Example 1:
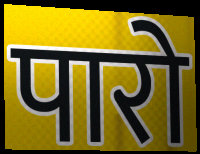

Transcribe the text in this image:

पारो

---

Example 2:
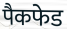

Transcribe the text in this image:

पैकफेड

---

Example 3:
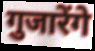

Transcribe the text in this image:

गुजारेंगे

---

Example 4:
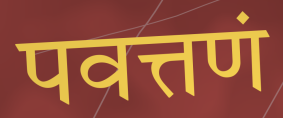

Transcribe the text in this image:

पवत्तणं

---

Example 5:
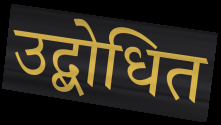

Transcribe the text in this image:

उद्बोधित